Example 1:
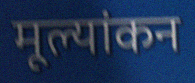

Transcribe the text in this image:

मूल्‍यांकन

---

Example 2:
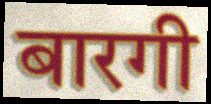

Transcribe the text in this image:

बारगी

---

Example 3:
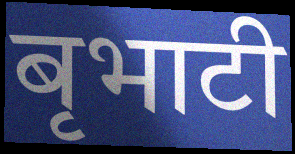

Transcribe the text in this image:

बृभाटी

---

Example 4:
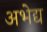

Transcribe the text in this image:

अभेद्य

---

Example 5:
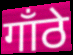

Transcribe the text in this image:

गाँठे